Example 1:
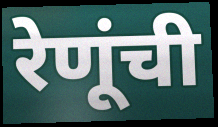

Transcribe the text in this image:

रेणूंची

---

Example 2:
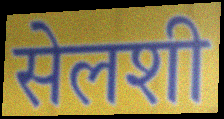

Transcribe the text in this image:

सेलशी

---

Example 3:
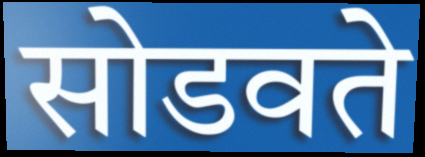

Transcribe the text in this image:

सोडवते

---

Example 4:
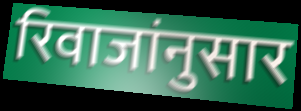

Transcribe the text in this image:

रिवाजांनुसार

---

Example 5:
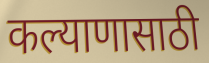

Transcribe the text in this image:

कल्याणासाठी